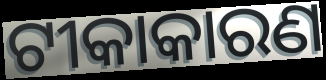
ଟୀକାକାରଣ